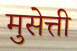
मुसेत्ती